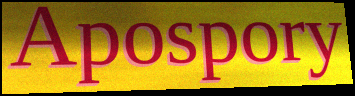
Apospory